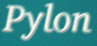
Pylon